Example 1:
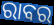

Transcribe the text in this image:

ରାବର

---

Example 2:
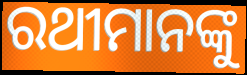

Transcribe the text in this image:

ରଥୀମାନଙ୍କୁ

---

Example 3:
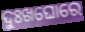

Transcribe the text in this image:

ଦୁଃଖଘୋରେ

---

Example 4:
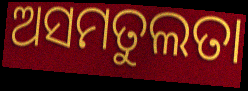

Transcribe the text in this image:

ଅସମତୁଲତା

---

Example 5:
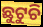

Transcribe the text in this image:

ଛୁଟୁଚି